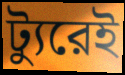
ট্যুরেই